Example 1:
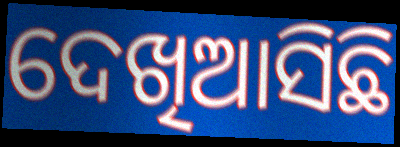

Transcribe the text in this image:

ଦେଖିଆସିଛି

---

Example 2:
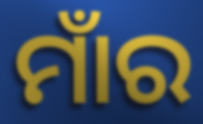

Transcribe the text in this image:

ମାଁର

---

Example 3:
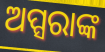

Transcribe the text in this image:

ଅପ୍ସରାଙ୍କ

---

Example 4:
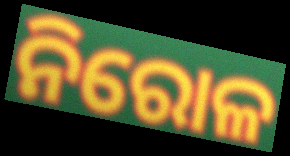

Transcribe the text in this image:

ନିରୋଳ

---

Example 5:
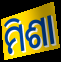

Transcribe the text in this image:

ମିଶା